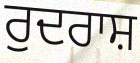
ਰੁਦਰਾਸ਼